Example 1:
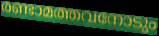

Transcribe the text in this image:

രണ്ടാമത്തവനോടും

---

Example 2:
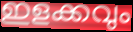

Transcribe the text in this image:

ഇളക്കവും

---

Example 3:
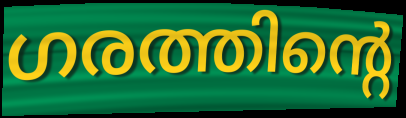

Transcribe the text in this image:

ഗരത്തിന്റെ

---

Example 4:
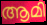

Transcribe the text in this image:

ആമി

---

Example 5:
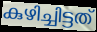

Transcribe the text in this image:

കുഴിച്ചിട്ടത്